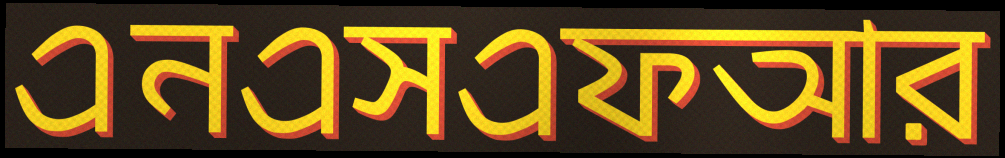
এনএসএফআর